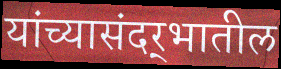
यांच्यासंदर्भातील